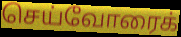
செய்வோரைக்